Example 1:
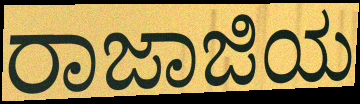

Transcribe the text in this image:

ರಾಜಾಜಿಯ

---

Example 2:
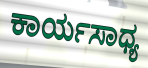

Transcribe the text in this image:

ಕಾರ್ಯಸಾಧ್ಯ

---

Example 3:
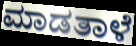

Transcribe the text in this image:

ಮಾಡತಾಳೆ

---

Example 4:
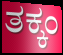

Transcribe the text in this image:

ತಕ್ಕಂ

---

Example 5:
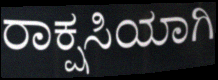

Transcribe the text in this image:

ರಾಕ್ಷಸಿಯಾಗಿ